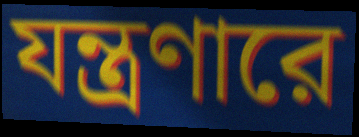
যন্ত্রণারে